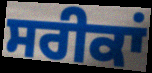
ਸਰੀਕਾਂ